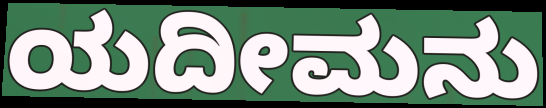
ಯದೀಮನು